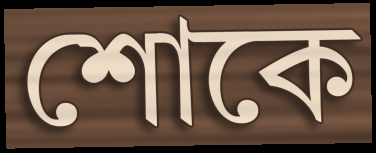
শোকে